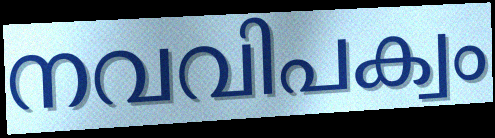
നവവിപക്വം